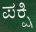
ಪಕ್ಷಿ